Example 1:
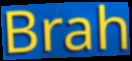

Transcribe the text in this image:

Brah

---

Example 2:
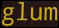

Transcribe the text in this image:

glum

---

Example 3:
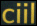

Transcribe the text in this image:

ciil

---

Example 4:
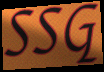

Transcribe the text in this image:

SSG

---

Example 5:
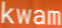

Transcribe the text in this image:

kwam